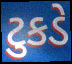
ટુકડે